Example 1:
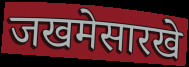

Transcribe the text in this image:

जखमेसारखे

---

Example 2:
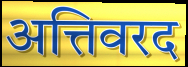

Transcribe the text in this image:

अत्तिवरद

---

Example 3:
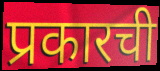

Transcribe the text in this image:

प्रकारची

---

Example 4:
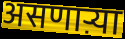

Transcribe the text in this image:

असणाऱ्‍या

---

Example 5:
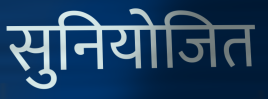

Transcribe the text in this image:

सुनियोजित